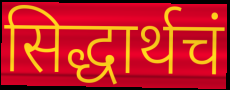
सिद्धार्थचं